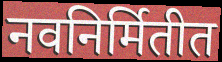
नवनिर्मितीत